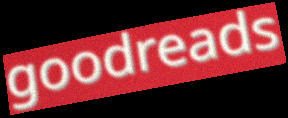
goodreads